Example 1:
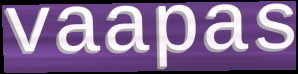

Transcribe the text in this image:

vaapas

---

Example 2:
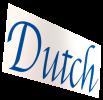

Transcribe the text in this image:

Dutch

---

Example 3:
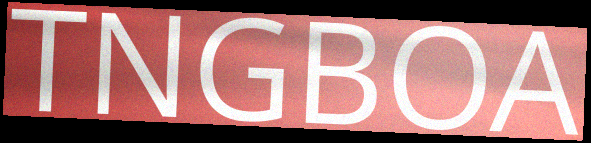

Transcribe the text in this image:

TNGBOA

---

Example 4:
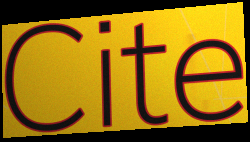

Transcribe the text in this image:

Cite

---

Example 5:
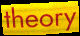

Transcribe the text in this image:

theory